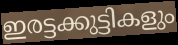
ഇരട്ടക്കുട്ടികളും